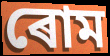
ৰোম